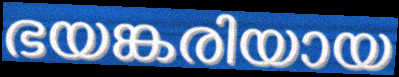
ഭയങ്കരിയായ